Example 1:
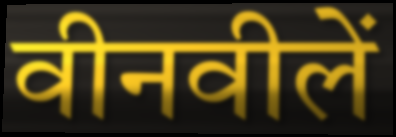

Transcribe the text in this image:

वीनवीलें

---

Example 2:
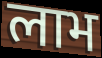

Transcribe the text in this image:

लाभ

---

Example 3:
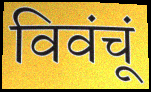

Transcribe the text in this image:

विवंचूं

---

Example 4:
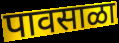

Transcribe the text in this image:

पावसाळा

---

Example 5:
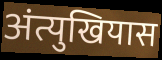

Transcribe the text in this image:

अंत्युखियास